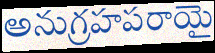
అనుగ్రహపరాయై